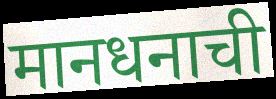
मानधनाची